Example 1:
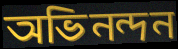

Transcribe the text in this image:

অভিনন্দন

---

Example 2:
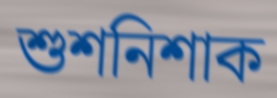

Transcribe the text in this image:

শুশনিশাক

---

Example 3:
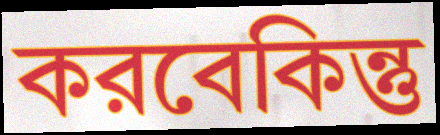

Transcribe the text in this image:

করবেকিন্তু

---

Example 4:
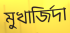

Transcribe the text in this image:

মুখার্জিদা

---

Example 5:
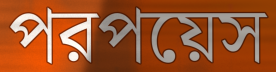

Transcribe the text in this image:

পরপয়েস